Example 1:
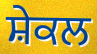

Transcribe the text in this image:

ਸ਼ੇਕਲ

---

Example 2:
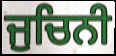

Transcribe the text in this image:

ਜੁਚਿਨੀ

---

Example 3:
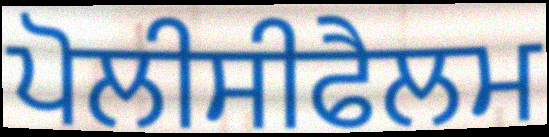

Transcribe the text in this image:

ਪੋਲੀਸੀਫੈਲਮ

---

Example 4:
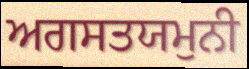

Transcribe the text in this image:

ਅਗਸਤਯਮੁਨੀ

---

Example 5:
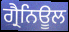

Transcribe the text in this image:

ਗ੍ਰੈਨਿਊਲ